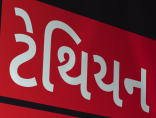
ટેથિયન